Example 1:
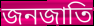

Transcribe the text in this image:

জনজাতি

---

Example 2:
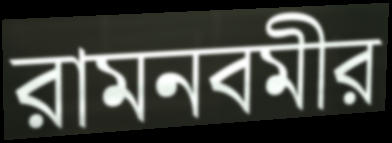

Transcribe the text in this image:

রামনবমীর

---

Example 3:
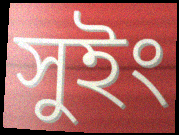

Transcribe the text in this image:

সুইং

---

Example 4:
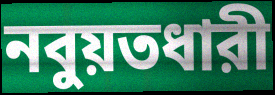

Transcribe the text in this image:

নবুয়তধারী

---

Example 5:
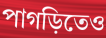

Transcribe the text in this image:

পাগড়িতেও